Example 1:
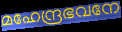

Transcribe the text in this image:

മഹേന്ദ്രഭവനേ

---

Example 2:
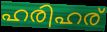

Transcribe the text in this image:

ഹരിഹര്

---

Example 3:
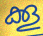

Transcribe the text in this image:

ക്കൂ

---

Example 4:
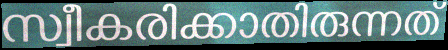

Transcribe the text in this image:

സ്വീകരിക്കാതിരുന്നത്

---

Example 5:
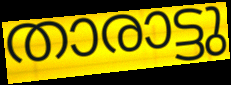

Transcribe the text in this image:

താരാട്ടു